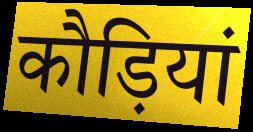
कौड़ियां